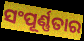
ସଂପୂର୍ଣ୍ଣତାର